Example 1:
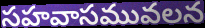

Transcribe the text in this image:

సహవాసమువలన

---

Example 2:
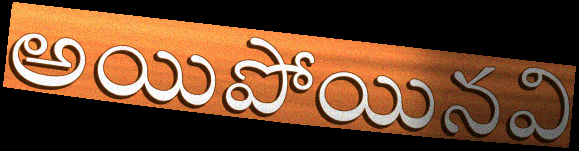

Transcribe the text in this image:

అయిపోయినవి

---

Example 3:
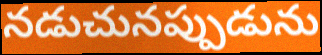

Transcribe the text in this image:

నడుచునప్పుడును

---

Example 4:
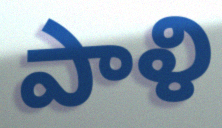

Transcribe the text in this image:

పాళి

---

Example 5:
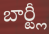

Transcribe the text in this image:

బార్ట్లీ